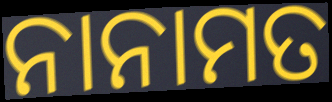
ନାନାମତ